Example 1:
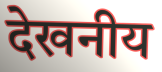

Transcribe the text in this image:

देखनीय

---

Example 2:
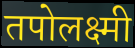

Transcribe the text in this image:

तपोलक्ष्मी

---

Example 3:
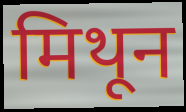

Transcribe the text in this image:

मिथून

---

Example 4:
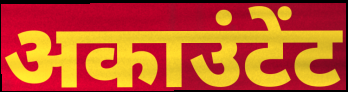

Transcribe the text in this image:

अकाउंटेंट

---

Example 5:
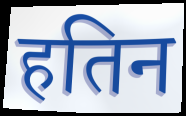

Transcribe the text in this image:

हतिन